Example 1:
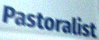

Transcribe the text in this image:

Pastoralist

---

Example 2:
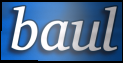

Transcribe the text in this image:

baul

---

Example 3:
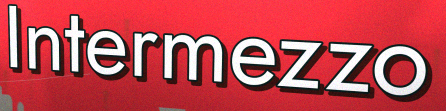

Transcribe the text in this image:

Intermezzo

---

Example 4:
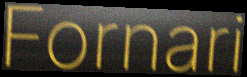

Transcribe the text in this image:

Fornari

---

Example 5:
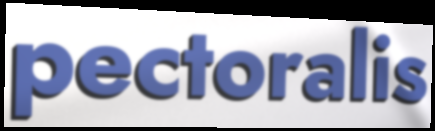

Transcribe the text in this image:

pectoralis